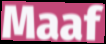
Maaf